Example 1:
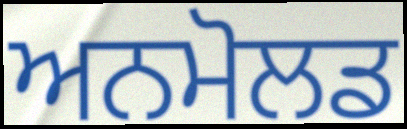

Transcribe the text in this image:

ਅਨਮੋਲਡ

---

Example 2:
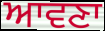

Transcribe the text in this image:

ਆਵਣਾ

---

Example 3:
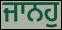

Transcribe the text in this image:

ਜਾਨਹੁ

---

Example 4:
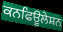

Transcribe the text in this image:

ਕਨਫਿਊਲੇਸ਼ਨ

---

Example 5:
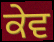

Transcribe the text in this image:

ਕੇਵ